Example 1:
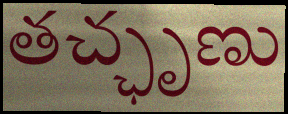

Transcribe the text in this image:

తచ్ఛృణు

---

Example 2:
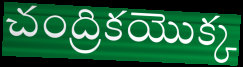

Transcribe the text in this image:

చంద్రికయొక్క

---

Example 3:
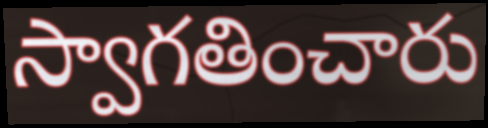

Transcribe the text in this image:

స్వాగతించారు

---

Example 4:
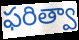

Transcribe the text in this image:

ఫరిత్వా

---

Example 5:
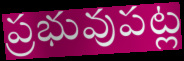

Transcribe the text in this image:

ప్రభువుపట్ల